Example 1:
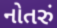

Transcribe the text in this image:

નોતરું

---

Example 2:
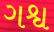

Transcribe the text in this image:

ગશ્વ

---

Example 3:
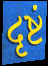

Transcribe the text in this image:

દૃષ્ટં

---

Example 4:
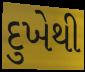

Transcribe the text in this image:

દુખેથી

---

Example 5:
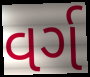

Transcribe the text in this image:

વર્ગ